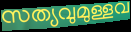
സത്യവുമുള്ളവ